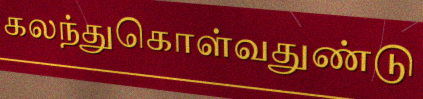
கலந்துகொள்வதுண்டு